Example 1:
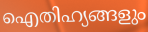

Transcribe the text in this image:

ഐതിഹ്യങ്ങളും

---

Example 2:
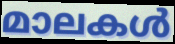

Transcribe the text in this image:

മാലകൾ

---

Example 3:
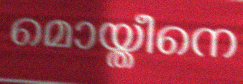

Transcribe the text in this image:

മൊയ്തീനെ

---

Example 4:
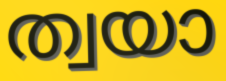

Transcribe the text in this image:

ത്വയാ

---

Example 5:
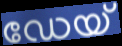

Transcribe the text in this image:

ഡേയ്